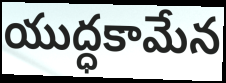
యుద్ధకామేన